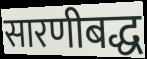
सारणीबद्ध